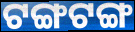
ଟଙ୍ଗଟଙ୍ଗ